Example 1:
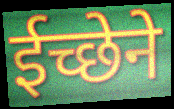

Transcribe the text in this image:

ईच्छेने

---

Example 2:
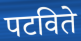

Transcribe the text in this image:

पटविते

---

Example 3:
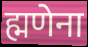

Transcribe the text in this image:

ह्मणेना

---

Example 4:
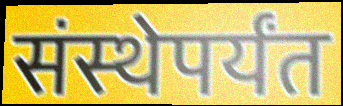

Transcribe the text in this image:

संस्थेपर्यंत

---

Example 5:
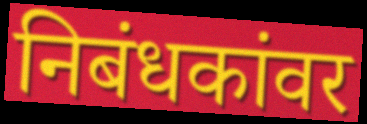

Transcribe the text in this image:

निबंधकांवर